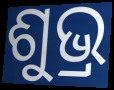
ଶୁଭ୍ର